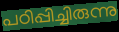
പഠിപ്പിച്ചിരുന്നു